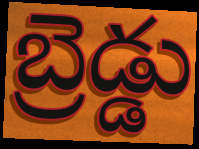
బ్రెడ్డు